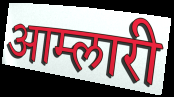
आम्लारी